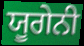
ਯੂਗੇਨੀ